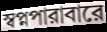
স্বপ্নপারাবারে